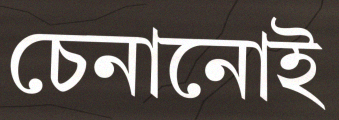
চেনানোই